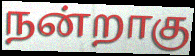
நன்றாகு